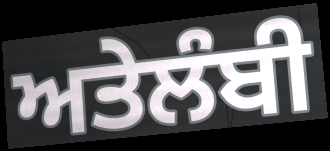
ਅਤੇਲੰਬੀ